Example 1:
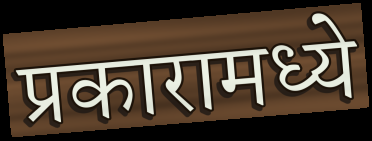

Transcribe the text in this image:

प्रकारामध्ये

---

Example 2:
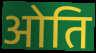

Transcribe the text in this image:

ओति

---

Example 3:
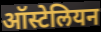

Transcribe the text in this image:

ऑस्टेलियन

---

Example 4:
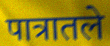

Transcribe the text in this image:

पात्रातले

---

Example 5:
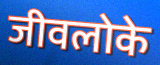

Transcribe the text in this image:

जीवलोके